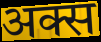
अक्स